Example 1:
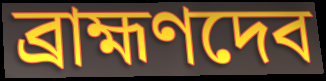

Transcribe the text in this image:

ব্রাহ্মণদেব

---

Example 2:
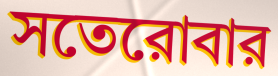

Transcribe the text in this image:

সতেরোবার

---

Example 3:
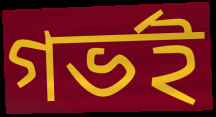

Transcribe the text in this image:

গর্ভই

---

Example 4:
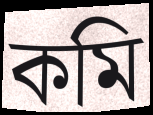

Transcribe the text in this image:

কমি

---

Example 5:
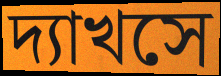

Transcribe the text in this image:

দ্যাখসে